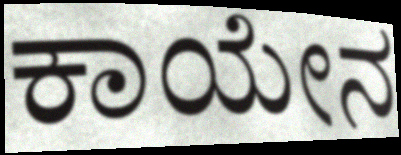
ಕಾಯೇನ